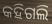
କହିଗଲି